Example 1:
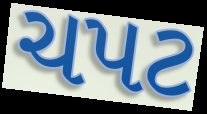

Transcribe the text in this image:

ચપટ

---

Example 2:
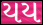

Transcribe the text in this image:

યય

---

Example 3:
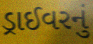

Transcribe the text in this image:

ડ્રાઈવરનું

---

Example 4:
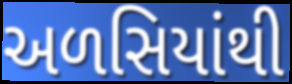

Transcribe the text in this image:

અળસિયાંથી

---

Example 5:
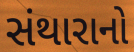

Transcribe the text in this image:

સંથારાનો